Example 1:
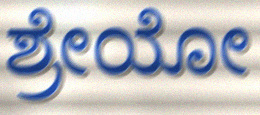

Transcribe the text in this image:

ಶ್ರೇಯೋ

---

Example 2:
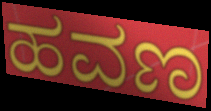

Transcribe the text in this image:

ಹವಣ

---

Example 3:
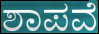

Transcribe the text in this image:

ಶಾಪವೆ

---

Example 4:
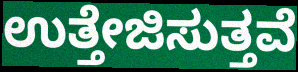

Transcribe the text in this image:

ಉತ್ತೇಜಿಸುತ್ತವೆ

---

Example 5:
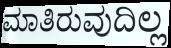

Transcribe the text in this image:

ಮಾತಿರುವುದಿಲ್ಲ